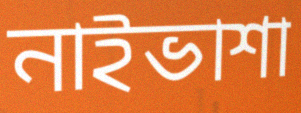
নাইভাশা